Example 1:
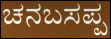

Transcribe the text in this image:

ಚನಬಸಪ್ಪ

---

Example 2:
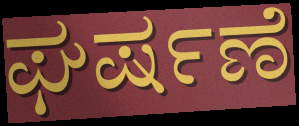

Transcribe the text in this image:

ಘರ್ಷಣೆ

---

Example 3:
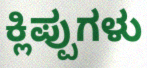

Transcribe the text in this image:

ಕ್ಲಿಪ್ಪುಗಳು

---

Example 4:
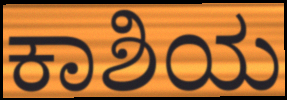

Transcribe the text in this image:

ಕಾಶಿಯ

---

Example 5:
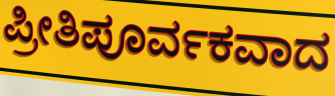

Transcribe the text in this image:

ಪ್ರೀತಿಪೂರ್ವಕವಾದ